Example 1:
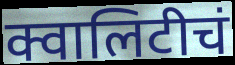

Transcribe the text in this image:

क्वालिटीचं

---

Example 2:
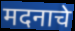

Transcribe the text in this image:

मदनाचे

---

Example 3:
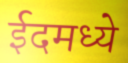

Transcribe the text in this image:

ईदमध्ये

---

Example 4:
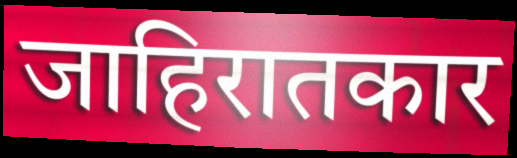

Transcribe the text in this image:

जाहिरातकार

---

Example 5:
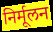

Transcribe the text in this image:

निर्मूलन